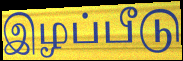
இழப்பீடு